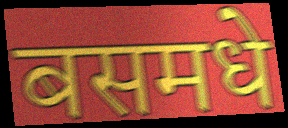
बसमधे